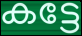
കട്ടേ